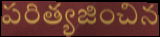
పరిత్యజించిన